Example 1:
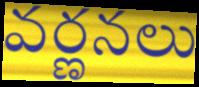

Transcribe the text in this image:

వర్ణనలు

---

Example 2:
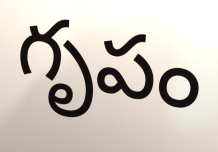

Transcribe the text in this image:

గృపం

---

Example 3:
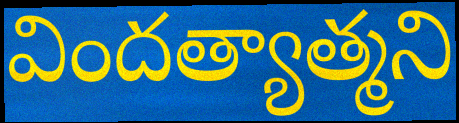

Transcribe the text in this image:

విందత్యాత్మని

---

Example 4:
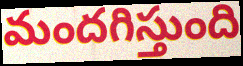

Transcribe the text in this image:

మందగిస్తుంది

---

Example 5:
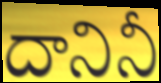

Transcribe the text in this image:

దానినీ